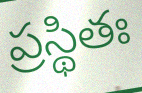
ప్రస్థితః